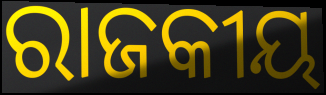
ରାଜକୀୟ